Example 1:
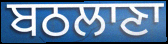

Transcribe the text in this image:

ਬਠਲਾਣਾ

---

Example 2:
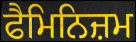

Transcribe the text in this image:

ਫੈਮਿਨਿਜ਼ਮ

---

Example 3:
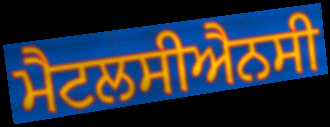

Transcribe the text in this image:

ਮੈਟਲਸੀਐਨਸੀ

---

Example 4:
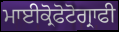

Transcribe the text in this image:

ਮਾਈਕ੍ਰੋਫੋਟੋਗ੍ਰਾਫੀ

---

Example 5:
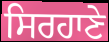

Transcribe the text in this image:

ਸਿਰਹਾਣੇ